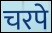
चरपे